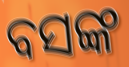
ବସଙ୍କ